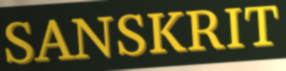
SANSKRIT